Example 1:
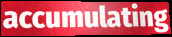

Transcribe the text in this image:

accumulating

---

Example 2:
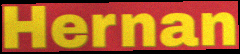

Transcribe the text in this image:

Hernan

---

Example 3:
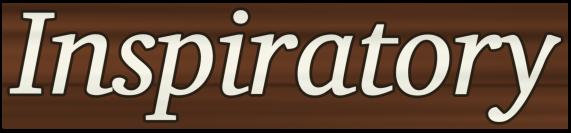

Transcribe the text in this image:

Inspiratory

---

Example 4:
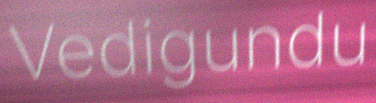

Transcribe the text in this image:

Vedigundu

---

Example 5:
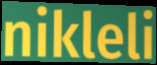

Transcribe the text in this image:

nikleli